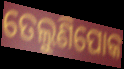
ତେଲୁଣିପୋକ